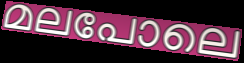
മലപോലെ